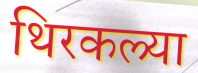
थिरकल्या